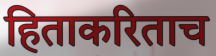
हिताकरिताच